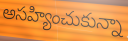
అసహ్యించుకున్నా